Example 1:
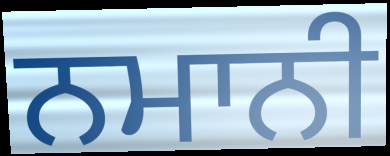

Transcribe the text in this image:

ਨਮਾਨੀ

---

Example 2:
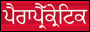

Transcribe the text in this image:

ਪੈਰਾਪ੍ਰੈੱਕ੍ਰੇਟਿਕ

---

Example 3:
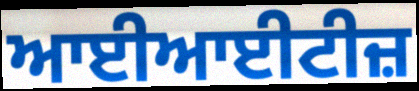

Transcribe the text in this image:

ਆਈਆਈਟੀਜ਼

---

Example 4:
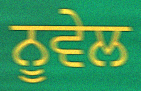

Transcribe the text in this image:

ਨੂਵੇਲ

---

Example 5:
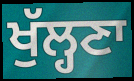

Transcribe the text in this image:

ਖੁੱਲ੍ਹਣਾ